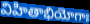
విహితాభియోగాః